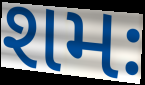
શમઃ